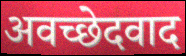
अवच्छेदवाद